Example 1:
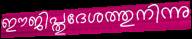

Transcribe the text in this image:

ഈജിപ്തുദേശത്തുനിന്നു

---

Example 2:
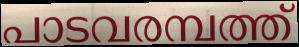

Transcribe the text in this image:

പാടവരമ്പത്ത്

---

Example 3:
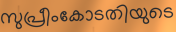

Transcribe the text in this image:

സുപ്രീംകോടതിയുടെ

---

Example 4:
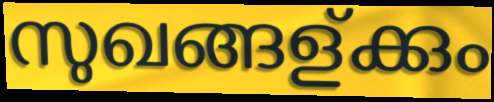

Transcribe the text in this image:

സുഖങ്ങള്ക്കും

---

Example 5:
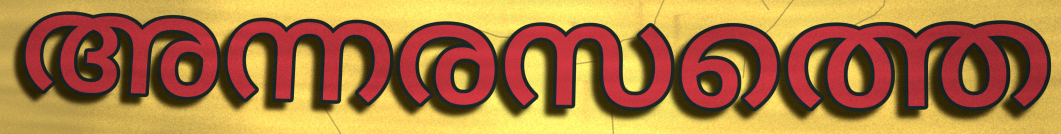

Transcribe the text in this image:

അന്നരസത്തെ